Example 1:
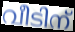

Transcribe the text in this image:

വീടിന്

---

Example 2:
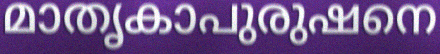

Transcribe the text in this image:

മാതൃകാപുരുഷനെ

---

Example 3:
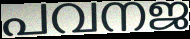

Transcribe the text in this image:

പവനജ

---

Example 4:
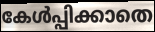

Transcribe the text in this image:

കേൾപ്പിക്കാതെ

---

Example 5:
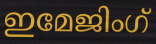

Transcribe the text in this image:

ഇമേജിംഗ്